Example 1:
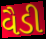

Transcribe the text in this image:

વૈડી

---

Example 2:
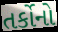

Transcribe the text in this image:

તર્કોનો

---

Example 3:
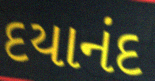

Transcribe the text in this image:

દયાનંદ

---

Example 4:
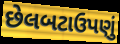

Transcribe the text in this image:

છેલબટાઉપણું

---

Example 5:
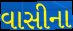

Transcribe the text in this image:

વાસીના